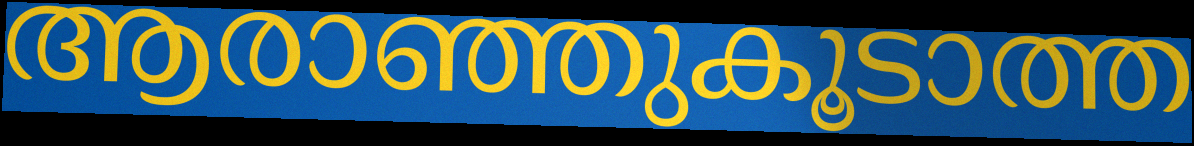
ആരാഞ്ഞുകൂടാത്ത